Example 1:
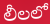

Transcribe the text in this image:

లీలలో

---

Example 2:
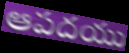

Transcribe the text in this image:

ఆపదయు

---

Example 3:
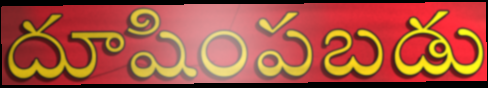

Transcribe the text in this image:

దూషింపబడు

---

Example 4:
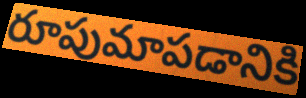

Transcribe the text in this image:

రూపుమాపడానికి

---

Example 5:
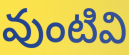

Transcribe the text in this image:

వుంటివి